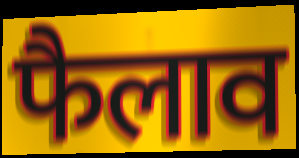
फैलाव